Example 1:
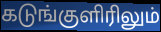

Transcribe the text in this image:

கடுங்குளிரிலும்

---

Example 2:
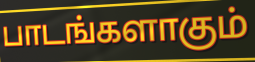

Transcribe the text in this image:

பாடங்களாகும்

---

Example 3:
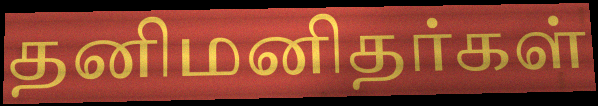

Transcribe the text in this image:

தனிமனிதர்கள்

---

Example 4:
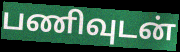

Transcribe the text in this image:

பணிவுடன்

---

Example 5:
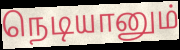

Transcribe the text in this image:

நெடியானும்